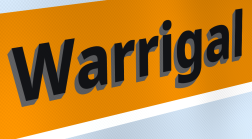
Warrigal